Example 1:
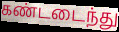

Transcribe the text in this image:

கண்டடைந்து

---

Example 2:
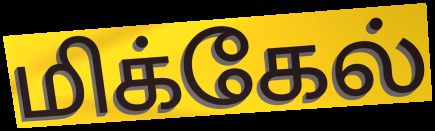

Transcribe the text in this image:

மிக்கேல்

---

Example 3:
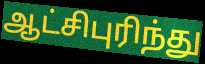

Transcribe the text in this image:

ஆட்சிபுரிந்து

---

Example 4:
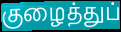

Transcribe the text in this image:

குழைத்துப்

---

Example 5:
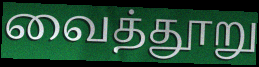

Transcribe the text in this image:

வைத்தூறு